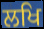
ਲਖਿ